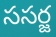
ససర్జ